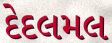
દેદલમલ